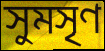
সুমসৃণ